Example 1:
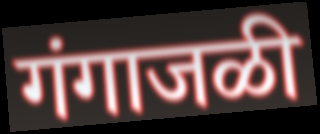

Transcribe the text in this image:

गंगाजळी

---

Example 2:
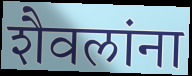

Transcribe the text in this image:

शैवलांना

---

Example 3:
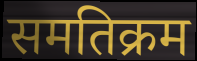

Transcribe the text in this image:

समतिक्रम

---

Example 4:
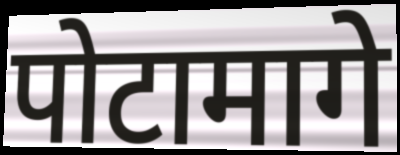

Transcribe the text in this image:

पोटामागे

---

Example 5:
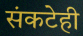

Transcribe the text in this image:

संकटेही